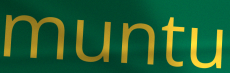
muntu